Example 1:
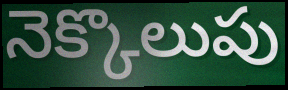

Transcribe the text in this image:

నెక్కొలుపు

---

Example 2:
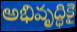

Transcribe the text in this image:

అభివృద్ధికై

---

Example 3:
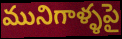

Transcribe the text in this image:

మునిగాళ్ళపై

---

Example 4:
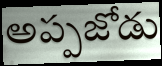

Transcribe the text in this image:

అప్పజోడు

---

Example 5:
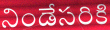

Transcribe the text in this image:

నిండేసరికి